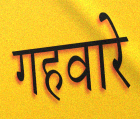
गहवारे